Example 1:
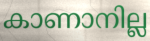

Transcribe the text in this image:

കാണാനില്ല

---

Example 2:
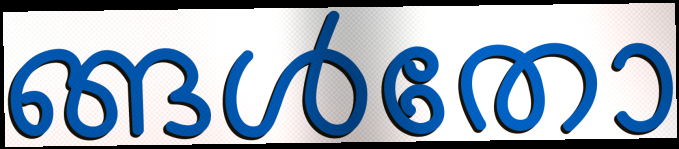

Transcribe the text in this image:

ങ്ങൾതോ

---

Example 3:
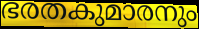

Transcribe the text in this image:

ഭരതകുമാരനും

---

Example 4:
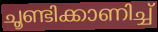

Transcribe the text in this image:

ചൂണ്ടിക്കാണിച്ച്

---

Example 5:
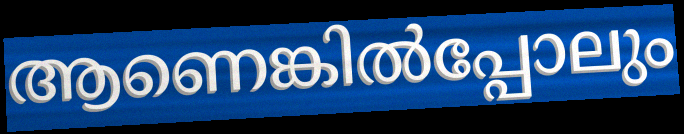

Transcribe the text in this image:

ആണെങ്കിൽപ്പോലും